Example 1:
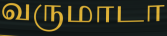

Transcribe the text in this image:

வருமாடா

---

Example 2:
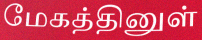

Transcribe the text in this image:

மேகத்தினுள்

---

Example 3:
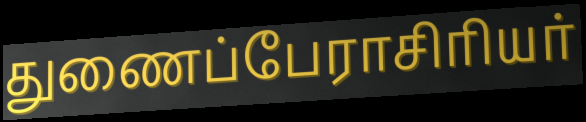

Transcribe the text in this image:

துணைப்பேராசிரியர்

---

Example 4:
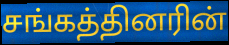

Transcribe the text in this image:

சங்கத்தினரின்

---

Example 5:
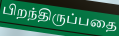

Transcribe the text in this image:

பிறந்திருப்பதை